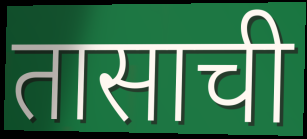
तासाची